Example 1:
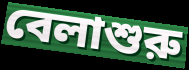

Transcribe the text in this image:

বেলাশুরু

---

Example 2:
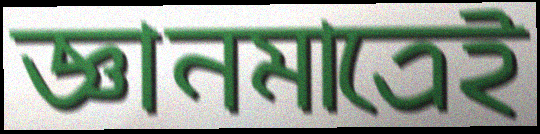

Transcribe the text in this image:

জ্ঞানমাত্রেই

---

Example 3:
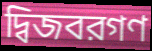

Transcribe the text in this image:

দ্বিজবরগণ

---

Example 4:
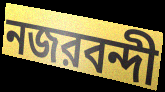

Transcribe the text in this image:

নজরবন্দী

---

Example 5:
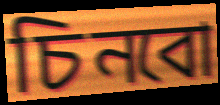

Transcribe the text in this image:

চিনবো